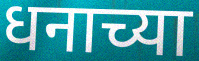
धनाच्या